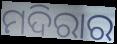
ମଦିରାର